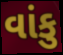
વાંકુ